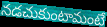
నడచుకుంటామంటే